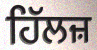
ਹਿੱਲਜ਼